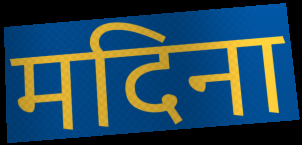
मदिना